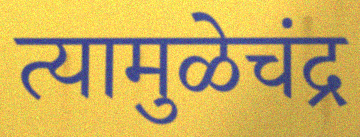
त्यामुळेचंद्र